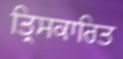
ਤ੍ਰਿਸਕਾਰਿਤ